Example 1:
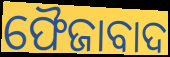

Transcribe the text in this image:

ଫୈଜାବାଦ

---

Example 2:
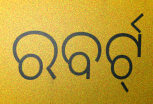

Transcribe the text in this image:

ରବର୍ଟ୍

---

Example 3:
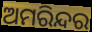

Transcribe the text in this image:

ଅମରିନ୍ଦର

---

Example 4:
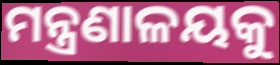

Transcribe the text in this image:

ମନ୍ତ୍ରଣାଳୟକୁ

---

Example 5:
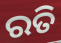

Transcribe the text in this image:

ରତି